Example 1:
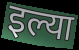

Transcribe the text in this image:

इल्या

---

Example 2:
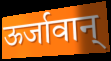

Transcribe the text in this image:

ऊर्जावान्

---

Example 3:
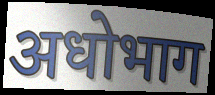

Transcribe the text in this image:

अधोभाग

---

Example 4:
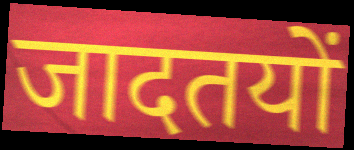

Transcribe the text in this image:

जादतयों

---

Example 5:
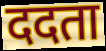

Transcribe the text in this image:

ददता